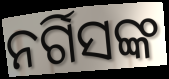
ନର୍ଗିସଙ୍କ